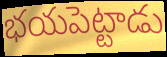
భయపెట్టాడు